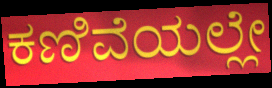
ಕಣಿವೆಯಲ್ಲೇ